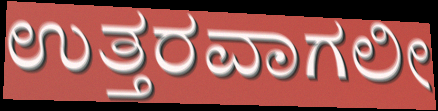
ಉತ್ತರವಾಗಲೀ